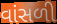
વાંસળી